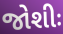
જોશીઃ